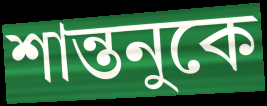
শান্তনুকে